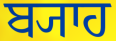
ਬ੍ਯਾਹ